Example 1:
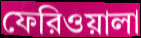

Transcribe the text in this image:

ফেরিওয়ালা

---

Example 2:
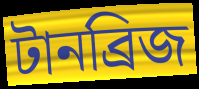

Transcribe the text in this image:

টানব্রিজ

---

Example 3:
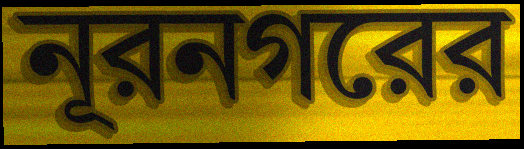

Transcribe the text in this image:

নূরনগরের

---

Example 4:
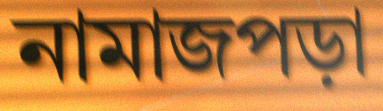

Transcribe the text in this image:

নামাজপড়া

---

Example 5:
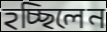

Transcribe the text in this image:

হচ্ছিলেন